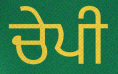
ਚੇਪੀ